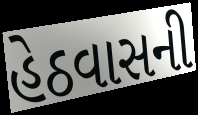
હેઠવાસની